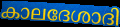
കാലദേശാദി